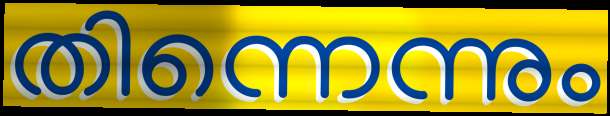
തിന്നെന്നും